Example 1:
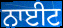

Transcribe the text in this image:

ਨਾਈਟ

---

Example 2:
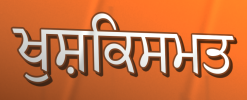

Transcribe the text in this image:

ਖੁਸ਼ਕਿਸਮਤ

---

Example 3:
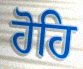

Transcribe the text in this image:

ਹੋਹਿ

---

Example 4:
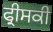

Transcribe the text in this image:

ਫ੍ਰੀਸਕੀ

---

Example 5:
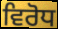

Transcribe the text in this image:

ਵਿਰੋਧ